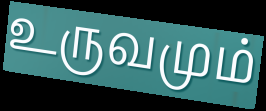
உருவமும்